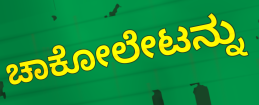
ಚಾಕೋಲೇಟನ್ನು